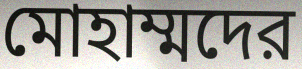
মোহাম্মদের